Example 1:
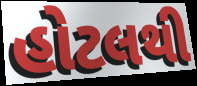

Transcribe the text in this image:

હોટલથી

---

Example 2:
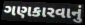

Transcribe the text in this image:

ગણકારવાનું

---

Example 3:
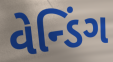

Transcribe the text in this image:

વેન્ડિંગ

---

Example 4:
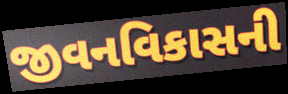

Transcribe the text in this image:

જીવનવિકાસની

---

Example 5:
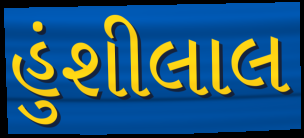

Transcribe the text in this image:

હુંશીલાલ